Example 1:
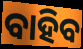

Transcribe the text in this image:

ବାହିବ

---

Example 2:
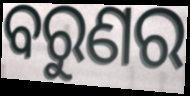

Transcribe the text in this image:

ବରୁଣର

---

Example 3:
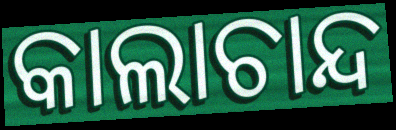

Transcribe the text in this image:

କାଲାଚାନ୍ଦ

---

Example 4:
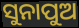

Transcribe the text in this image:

ସୁନାପୁଅ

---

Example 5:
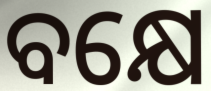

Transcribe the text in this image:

ବକ୍ଷେ